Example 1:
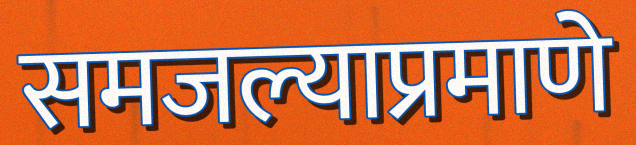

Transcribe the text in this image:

समजल्याप्रमाणे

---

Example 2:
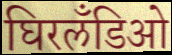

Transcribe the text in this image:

घिरलँडिओ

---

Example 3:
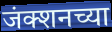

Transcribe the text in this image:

जंक्शनच्या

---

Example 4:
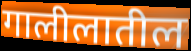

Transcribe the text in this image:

गालीलातील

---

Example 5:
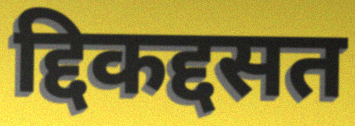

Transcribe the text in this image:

द्दिकद्दसत